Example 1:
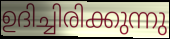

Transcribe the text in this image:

ഉദിച്ചിരിക്കുന്നു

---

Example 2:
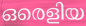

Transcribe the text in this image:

ഒരെളിയ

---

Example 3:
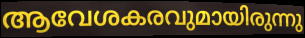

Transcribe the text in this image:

ആവേശകരവുമായിരുന്നു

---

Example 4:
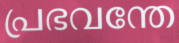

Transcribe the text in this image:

പ്രഭവന്തേ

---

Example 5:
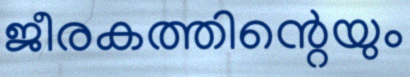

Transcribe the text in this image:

ജീരകത്തിന്റെയും